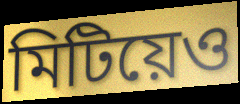
মিটিয়েও